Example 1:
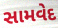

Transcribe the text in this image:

સામવેદ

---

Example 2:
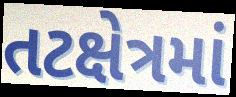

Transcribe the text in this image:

તટક્ષેત્રમાં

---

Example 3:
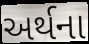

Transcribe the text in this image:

અર્થના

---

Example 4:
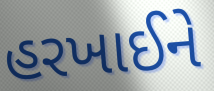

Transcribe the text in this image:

હરખાઈને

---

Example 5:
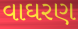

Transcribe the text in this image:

વાઘરણ